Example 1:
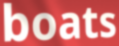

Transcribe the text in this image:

boats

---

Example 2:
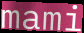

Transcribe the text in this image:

mami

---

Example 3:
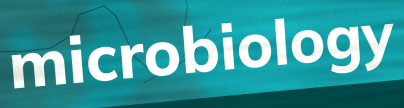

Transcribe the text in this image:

microbiology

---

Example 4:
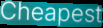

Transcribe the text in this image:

Cheapest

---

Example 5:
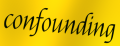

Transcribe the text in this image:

confounding